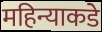
महिन्याकडे